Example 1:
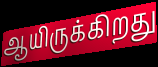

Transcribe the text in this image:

ஆயிருக்கிறது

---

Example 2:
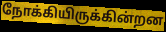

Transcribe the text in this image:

நோக்கியிருக்கின்றன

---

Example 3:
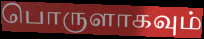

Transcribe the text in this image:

பொருளாகவும்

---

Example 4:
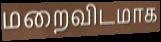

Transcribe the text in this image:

மறைவிடமாக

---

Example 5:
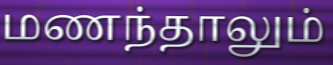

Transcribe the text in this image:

மணந்தாலும்